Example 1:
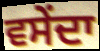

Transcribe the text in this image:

ਵਸੇਂਦਾ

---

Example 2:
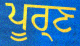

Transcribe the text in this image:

ਪੂਰ੍ਣ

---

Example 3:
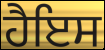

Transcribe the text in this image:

ਹੈਇਸ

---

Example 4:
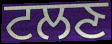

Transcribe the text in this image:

ਟਲਣ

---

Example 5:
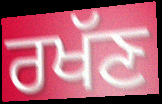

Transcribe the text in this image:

ਰਖੱਣ